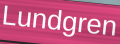
Lundgren